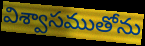
విశ్వాసముతోను